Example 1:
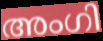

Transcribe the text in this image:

അംഗി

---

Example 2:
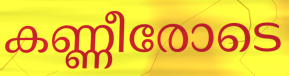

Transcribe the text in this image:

കണ്ണീരോടെ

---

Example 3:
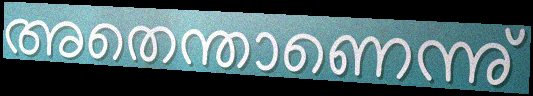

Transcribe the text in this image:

അതെന്താണെന്നു്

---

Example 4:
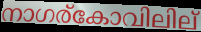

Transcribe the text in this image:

നാഗര്കോവിലില്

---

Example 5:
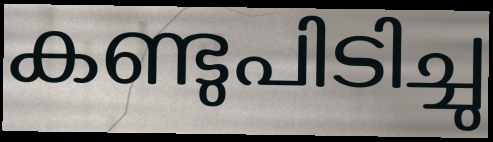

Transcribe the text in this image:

കണ്ടുപിടിച്ചു